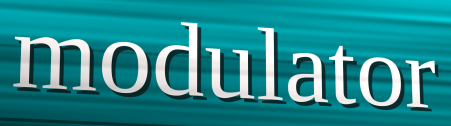
modulator